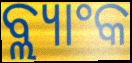
ବ୍ଲ୍ଯାଂକ